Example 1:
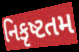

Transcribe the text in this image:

નિકૃષ્ટતમ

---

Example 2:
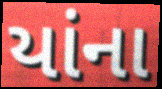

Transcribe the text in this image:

યાંના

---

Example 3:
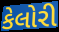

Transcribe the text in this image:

કેલોરી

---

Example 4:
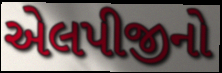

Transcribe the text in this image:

એલપીજીનો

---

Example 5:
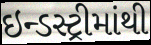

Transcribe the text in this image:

ઇન્ડસ્ટ્રીમાંથી